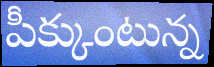
పీక్కుంటున్న